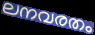
ലനവരതം